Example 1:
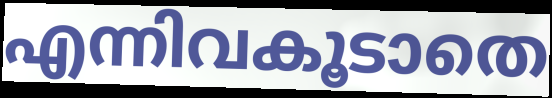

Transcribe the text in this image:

എന്നിവകൂടാതെ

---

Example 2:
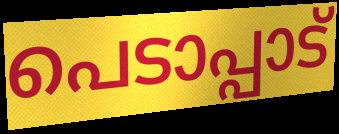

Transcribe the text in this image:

പെടാപ്പാട്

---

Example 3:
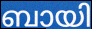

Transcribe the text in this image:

ബായി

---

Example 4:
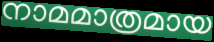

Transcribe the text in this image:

നാമമാത്രമായ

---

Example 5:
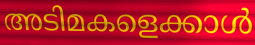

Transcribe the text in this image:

അടിമകളെക്കാൾ